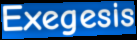
Exegesis